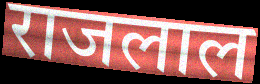
राजलाल